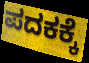
ಪದಕಕ್ಕೆ